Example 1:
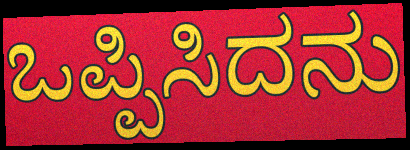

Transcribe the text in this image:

ಒಪ್ಪಿಸಿದನು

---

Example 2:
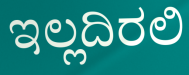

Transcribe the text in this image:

ಇಲ್ಲದಿರಲಿ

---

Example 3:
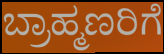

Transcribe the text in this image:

ಬ್ರಾಹ್ಮಣರಿಗೆ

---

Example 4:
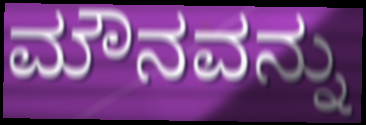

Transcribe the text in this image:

ಮೌನವನ್ನು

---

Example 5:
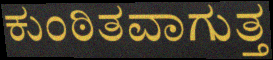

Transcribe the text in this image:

ಕುಂಠಿತವಾಗುತ್ತ